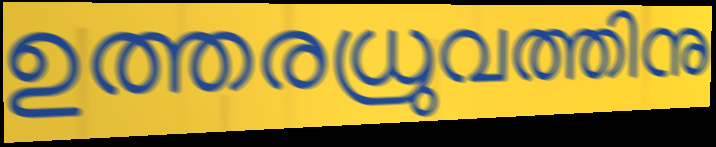
ഉത്തരധ്രുവത്തിനു